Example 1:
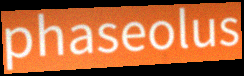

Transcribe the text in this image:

phaseolus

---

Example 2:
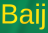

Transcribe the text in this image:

Baij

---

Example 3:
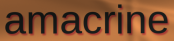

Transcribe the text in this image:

amacrine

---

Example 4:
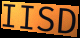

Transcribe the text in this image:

IISD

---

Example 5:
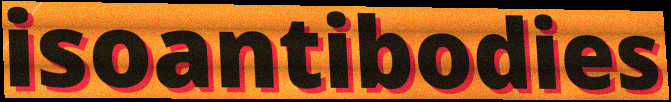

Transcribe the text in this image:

isoantibodies